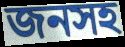
জনসহ